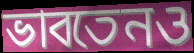
ভাবতেনও